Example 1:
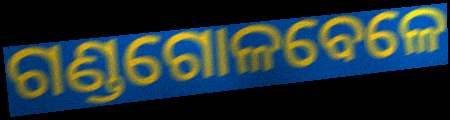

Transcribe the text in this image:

ଗଣ୍ଡଗୋଳବେଳେ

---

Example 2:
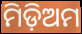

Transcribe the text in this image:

ମିଡ଼ିଅମ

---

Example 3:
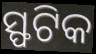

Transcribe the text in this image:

ସ୍ଫଟିକ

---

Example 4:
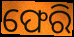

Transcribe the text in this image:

ଫେରି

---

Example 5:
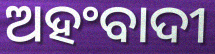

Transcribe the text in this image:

ଅହଂବାଦୀ